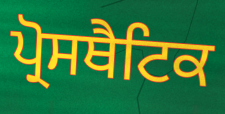
ਪ੍ਰੋਸਥੈਟਿਕ